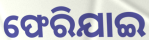
ଫେରିଯାଇ